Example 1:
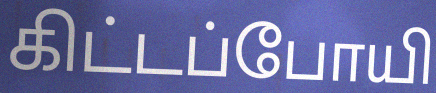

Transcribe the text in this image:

கிட்டப்போயி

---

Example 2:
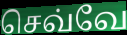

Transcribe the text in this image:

செவ்வே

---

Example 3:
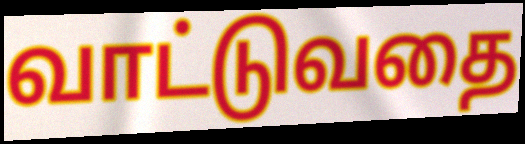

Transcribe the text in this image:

வாட்டுவதை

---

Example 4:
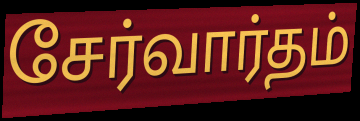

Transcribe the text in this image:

சேர்வார்தம்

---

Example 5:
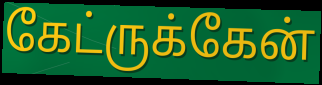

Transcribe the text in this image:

கேட்ருக்கேன்